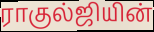
ராகுல்ஜியின்